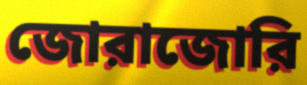
জোরাজোরি